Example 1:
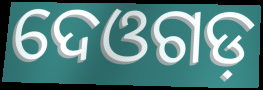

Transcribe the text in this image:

ଦେଓଗଡ଼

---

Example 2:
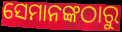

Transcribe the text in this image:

ସେମାନଙ୍କଠାରୁ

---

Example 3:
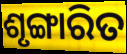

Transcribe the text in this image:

ଶୃଙ୍ଗାରିତ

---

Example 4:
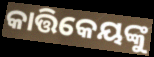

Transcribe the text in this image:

କାତ୍ତିକେୟଙ୍କୁ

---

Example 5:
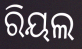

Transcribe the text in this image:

ରିୟଲ